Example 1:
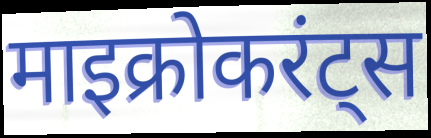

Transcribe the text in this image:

माइक्रोकरंट्स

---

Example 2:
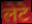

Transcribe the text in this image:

लेटे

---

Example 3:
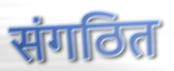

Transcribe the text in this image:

संगठित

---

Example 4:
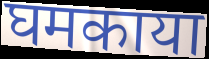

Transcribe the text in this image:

घमकाया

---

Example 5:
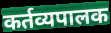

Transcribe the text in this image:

कर्तव्यपालक